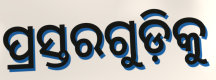
ପ୍ରସ୍ତରଗୁଡ଼ିକୁ